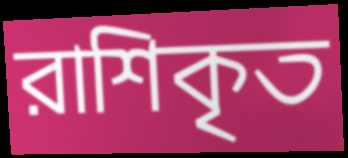
রাশিকৃত